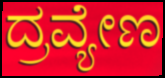
ದ್ರವ್ಯೇಣ